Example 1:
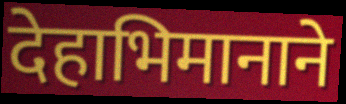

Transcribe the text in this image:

देहाभिमानाने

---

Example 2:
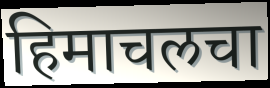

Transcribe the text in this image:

हिमाचलचा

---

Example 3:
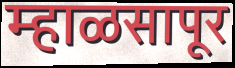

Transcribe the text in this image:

म्हाळसापूर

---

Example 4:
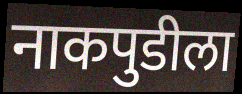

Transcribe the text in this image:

नाकपुडीला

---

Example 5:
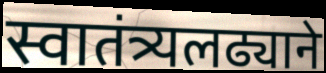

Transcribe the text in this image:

स्वातंत्र्यलढ्याने